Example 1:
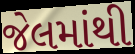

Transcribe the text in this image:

જેલમાંથી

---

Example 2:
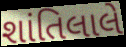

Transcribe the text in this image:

શાંતિલાલે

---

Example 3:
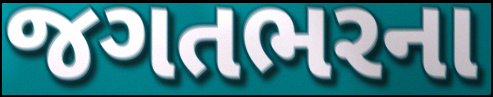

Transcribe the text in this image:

જગતભરના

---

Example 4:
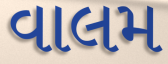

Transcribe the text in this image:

વાલમ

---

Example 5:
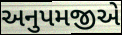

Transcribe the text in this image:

અનુપમજીએ